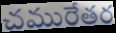
చమురేతర